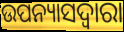
ଉପନ୍ୟାସଦ୍ୱାରା